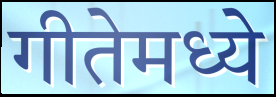
गीतेमध्ये